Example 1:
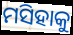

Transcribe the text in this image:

ମସିହାକୁ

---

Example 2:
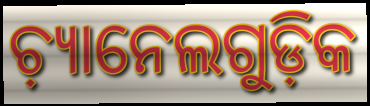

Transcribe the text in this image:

ଚ଼୍ୟାନେଲଗୁଡ଼ିକ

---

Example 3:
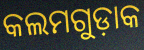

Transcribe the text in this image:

କଲମଗୁଡ଼ାକ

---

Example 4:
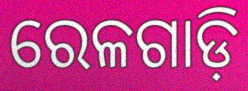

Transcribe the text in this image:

ରେଳଗାଡ଼ି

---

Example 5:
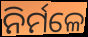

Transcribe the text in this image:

ନିର୍ମଳେ